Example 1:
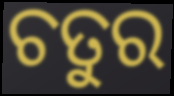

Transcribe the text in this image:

ଚତୁର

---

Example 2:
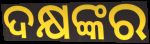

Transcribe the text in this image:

ଦକ୍ଷଙ୍କର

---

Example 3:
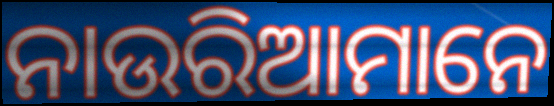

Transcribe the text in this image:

ନାଉରିଆମାନେ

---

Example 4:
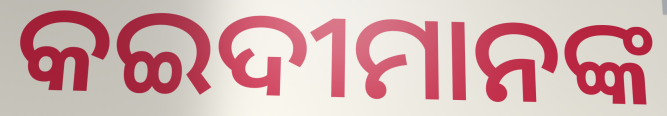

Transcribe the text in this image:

କଇଦୀମାନଙ୍କ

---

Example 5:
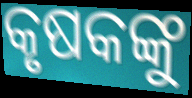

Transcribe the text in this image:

କୃଷକଙ୍କୁ